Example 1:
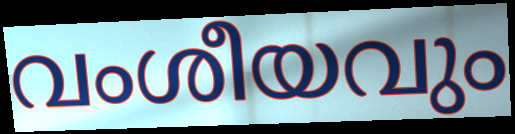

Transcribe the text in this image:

വംശീയവും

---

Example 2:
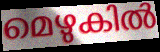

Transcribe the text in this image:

മെഴുകിൽ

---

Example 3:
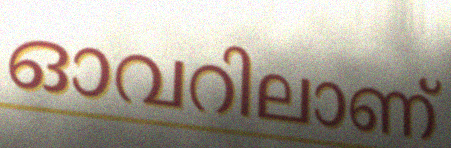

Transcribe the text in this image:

ഓവറിലാണ്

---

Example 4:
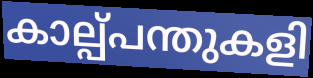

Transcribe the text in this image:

കാല്പ്പന്തുകളി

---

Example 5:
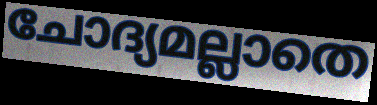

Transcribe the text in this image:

ചോദ്യമല്ലാതെ